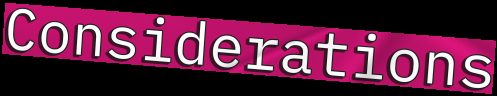
Considerations